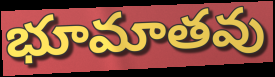
భూమాతవు